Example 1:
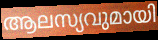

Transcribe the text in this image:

ആലസ്യവുമായി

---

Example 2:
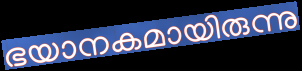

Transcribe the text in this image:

ഭയാനകമായിരുന്നു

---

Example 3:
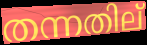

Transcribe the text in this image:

തന്നതില്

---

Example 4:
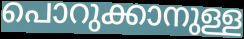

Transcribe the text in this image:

പൊറുക്കാനുള്ള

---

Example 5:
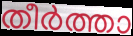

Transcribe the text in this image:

തീർത്താ